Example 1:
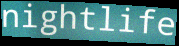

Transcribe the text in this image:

nightlife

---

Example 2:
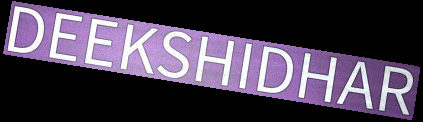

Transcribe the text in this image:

DEEKSHIDHAR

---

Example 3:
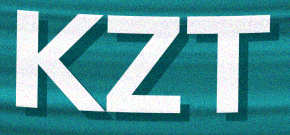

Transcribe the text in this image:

KZT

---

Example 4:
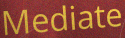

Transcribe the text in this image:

Mediate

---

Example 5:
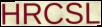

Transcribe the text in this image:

HRCSL